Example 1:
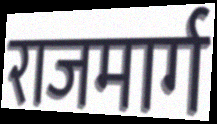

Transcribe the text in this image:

राजमार्ग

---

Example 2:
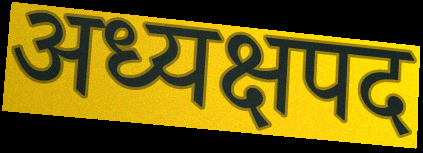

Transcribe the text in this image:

अध्यक्षपद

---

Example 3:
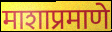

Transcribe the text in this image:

माशाप्रमाणे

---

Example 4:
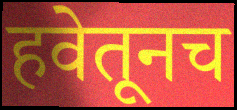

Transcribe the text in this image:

हवेतूनच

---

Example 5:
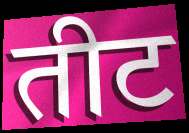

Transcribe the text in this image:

तीट